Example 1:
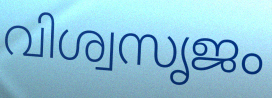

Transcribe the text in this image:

വിശ്വസൃജം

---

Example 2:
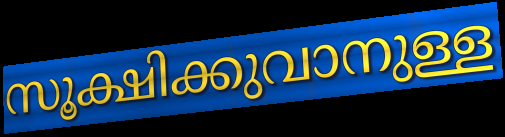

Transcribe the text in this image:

സൂക്ഷിക്കുവാനുള്ള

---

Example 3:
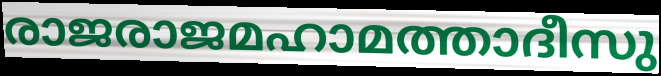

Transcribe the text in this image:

രാജരാജമഹാമത്താദീസു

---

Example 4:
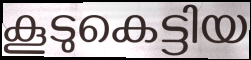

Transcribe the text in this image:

കൂടുകെട്ടിയ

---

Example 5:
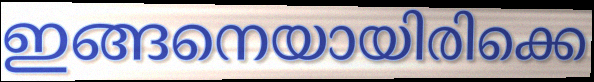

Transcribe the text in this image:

ഇങ്ങനെയായിരിക്കെ